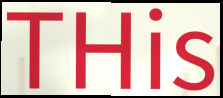
THis